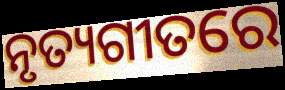
ନୃତ୍ୟଗୀତରେ